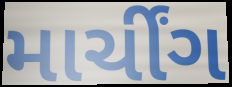
માર્ચીંગ